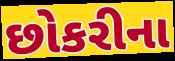
છોકરીના